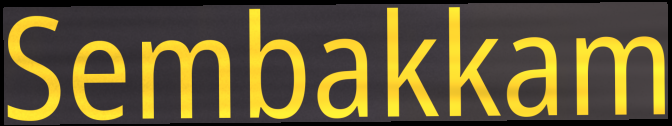
Sembakkam